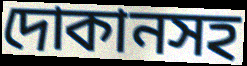
দোকানসহ